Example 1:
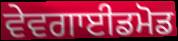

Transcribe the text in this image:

ਵੇਵਗਾਈਡਮੋਡ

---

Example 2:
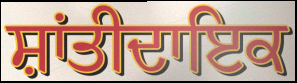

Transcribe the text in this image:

ਸ਼ਾਂਤੀਦਾਇਕ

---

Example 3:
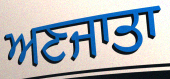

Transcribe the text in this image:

ਅਣਜਾਤਾ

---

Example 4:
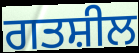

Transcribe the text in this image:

ਗਤਸ਼ੀਲ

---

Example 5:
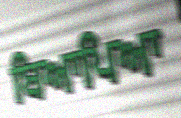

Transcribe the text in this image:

ਬਿਆਪਿਆ